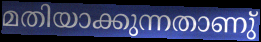
മതിയാക്കുന്നതാണു്